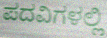
ಪದವಿಗಳಲ್ಲಿ